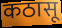
कठासू